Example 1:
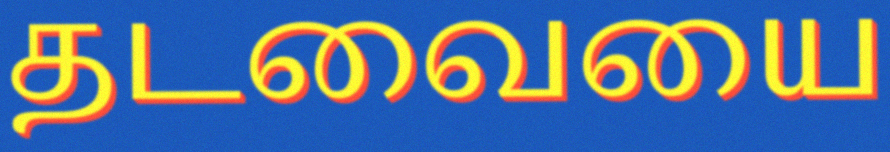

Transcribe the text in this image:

தடவையை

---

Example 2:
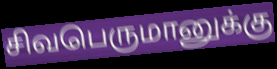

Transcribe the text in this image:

சிவபெருமானுக்கு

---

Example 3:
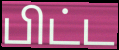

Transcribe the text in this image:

பிட்ட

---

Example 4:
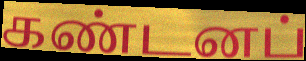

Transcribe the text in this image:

கண்டனப்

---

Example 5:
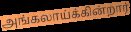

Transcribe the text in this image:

அங்கலாய்க்கின்றார்